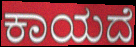
ಕಾಯದೆ